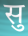
सु